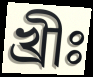
খ্রীঃ